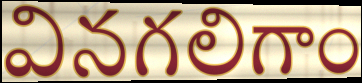
వినగలిగాం